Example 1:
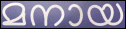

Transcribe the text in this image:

മനായ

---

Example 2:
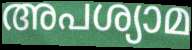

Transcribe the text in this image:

അപശ്യാമ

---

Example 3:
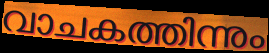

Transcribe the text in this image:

വാചകത്തിന്നും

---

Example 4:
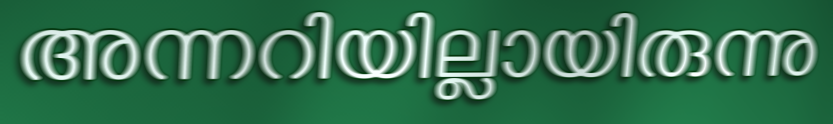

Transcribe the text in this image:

അന്നറിയില്ലായിരുന്നു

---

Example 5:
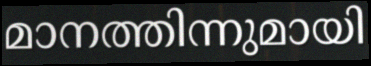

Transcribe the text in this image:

മാനത്തിന്നുമായി